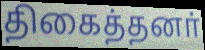
திகைத்தனர்